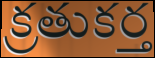
క్రతుకర్త